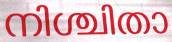
നിശ്ചിതാ